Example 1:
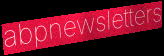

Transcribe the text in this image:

abpnewsletters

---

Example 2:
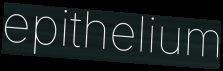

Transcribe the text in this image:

epithelium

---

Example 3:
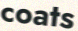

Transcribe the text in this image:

coats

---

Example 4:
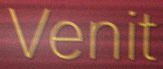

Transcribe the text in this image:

Venit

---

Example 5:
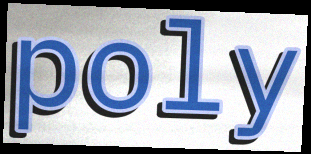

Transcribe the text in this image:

poly